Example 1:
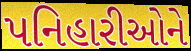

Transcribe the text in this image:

પનિહારીઓને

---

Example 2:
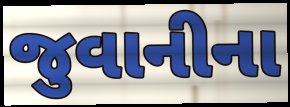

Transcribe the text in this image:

જુવાનીના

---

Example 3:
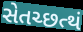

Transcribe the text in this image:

સેતચ્છત્થં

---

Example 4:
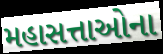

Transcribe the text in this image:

મહાસત્તાઓના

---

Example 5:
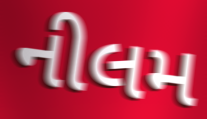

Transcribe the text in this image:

નીલમ